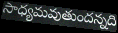
సాధ్యమవుతుందన్నది